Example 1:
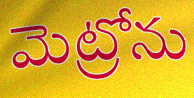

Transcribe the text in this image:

మెట్రోను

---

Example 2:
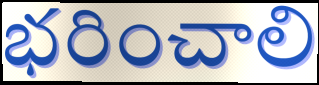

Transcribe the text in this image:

భరించాలి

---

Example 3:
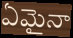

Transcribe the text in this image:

ఏమైనా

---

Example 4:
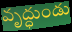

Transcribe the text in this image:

వృద్ధుండు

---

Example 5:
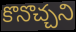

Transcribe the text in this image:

కొనొచ్చని